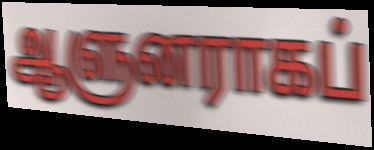
ஆளுனராகப்